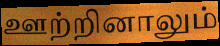
ஊற்றினாலும்